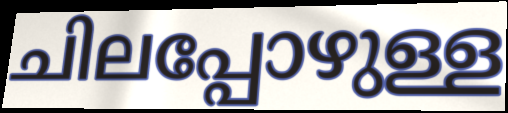
ചിലപ്പോഴുള്ള